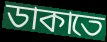
ডাকাতে